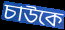
চাউকে